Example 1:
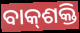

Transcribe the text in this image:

ବାକ୍‌ଶକ୍ତି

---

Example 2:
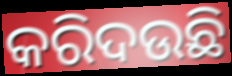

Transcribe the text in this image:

କରିଦଉଛି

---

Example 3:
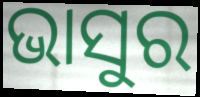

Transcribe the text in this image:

ଭାସୁର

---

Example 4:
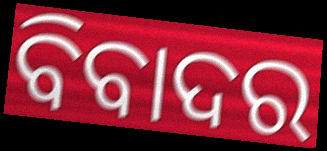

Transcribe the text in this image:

ବିବାଦର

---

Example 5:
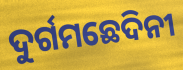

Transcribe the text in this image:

ଦୁର୍ଗମଛେଦିନୀ